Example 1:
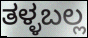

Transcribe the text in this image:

ತಳ್ಳಬಲ್ಲ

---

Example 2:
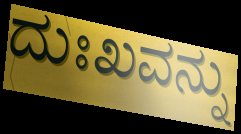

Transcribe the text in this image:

ದುಃಖವನ್ನು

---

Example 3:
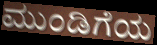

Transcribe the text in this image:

ಮುಂಡಿಗೆಯ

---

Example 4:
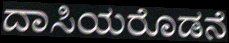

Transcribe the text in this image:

ದಾಸಿಯರೊಡನೆ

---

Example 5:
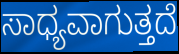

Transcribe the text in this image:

ಸಾಧ್ಯವಾಗುತ್ತದೆ